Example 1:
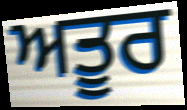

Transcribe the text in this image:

ਅਤੂਰ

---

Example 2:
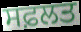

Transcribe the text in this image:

ਸਫ਼ਲਤ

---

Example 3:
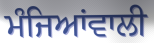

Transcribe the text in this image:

ਮੰਜਿਆਂਵਾਲੀ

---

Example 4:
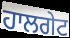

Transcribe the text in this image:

ਹਾਲਗੇਟ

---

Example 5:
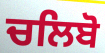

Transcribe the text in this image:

ਚਲਿਬੋ